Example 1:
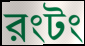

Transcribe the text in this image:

রংটং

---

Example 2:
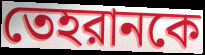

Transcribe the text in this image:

তেহরানকে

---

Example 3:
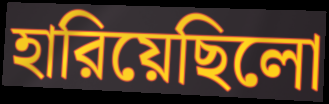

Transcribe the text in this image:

হারিয়েছিলো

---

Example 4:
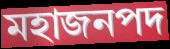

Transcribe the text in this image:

মহাজনপদ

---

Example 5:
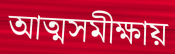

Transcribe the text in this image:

আত্মসমীক্ষায়